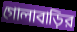
গোলাবাড়ির